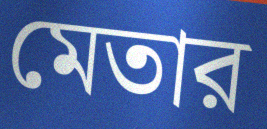
মেতার